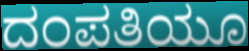
ದಂಪತಿಯೂ